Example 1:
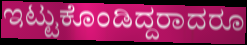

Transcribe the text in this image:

ಇಟ್ಟುಕೊಂಡಿದ್ದರಾದರೂ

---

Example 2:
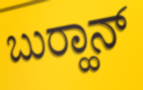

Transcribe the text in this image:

ಬುರ‍್ಹಾನ್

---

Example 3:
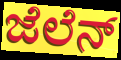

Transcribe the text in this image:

ಜೆಲೆನ್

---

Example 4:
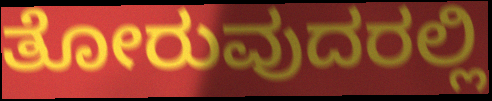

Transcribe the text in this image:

ತೋರುವುದರಲ್ಲಿ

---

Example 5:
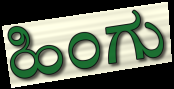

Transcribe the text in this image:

ಹಿಂಗು